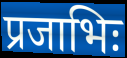
प्रजाभिः